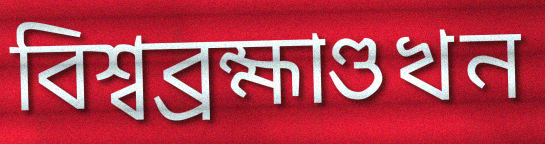
বিশ্বব্ৰহ্মাণ্ডখন